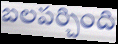
బలపర్చింది